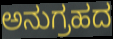
ಅನುಗ್ರಹದ